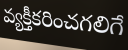
వ్యక్తీకరించగలిగే